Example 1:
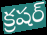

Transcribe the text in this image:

క్రషర్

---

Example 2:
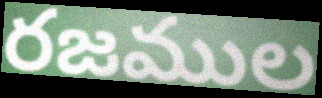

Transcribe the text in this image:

రజముల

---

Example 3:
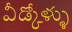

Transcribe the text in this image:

వీడ్కోళ్ళు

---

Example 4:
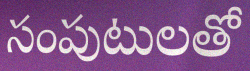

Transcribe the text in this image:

సంపుటులతో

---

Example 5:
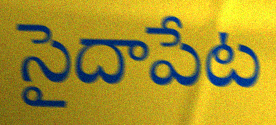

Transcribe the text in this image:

సైదాపేట